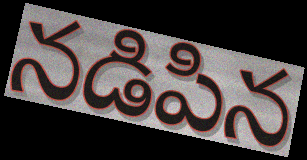
నడిపిన